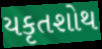
યકૃતશોથ